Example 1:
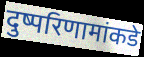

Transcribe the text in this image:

दुष्परिणामांकडे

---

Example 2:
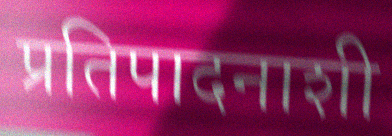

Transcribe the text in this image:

प्रतिपादनाशी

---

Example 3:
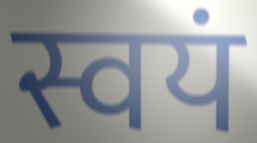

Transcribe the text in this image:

स्वयं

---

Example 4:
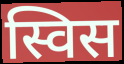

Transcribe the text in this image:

स्विस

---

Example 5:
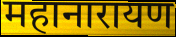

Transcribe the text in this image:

महानारायण